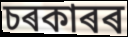
চৰকাৰৰ